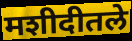
मशीदीतले